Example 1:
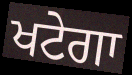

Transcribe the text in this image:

ਖਟੇਗਾ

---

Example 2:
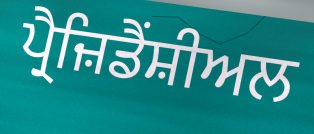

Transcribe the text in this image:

ਪ੍ਰੈਜ਼ਿਡੈਂਸ਼ੀਅਲ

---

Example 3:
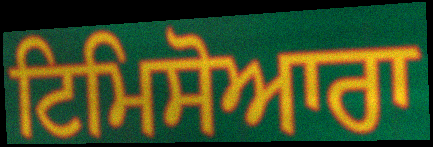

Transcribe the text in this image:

ਟਿਮਿਸੋਆਰਾ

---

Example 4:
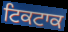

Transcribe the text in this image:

ਟਿਕਟਾਕ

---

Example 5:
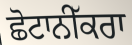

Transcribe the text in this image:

ਛੋਟਾਨੀੱਕਰਾ